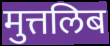
मुत्तलिब